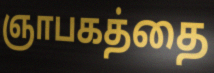
ஞாபகத்தை